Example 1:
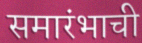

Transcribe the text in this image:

समारंभाची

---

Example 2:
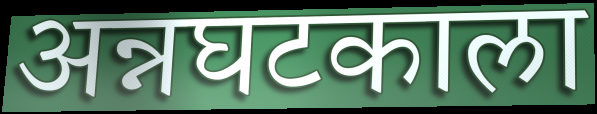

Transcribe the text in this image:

अन्नघटकाला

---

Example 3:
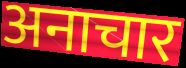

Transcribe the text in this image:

अनाचार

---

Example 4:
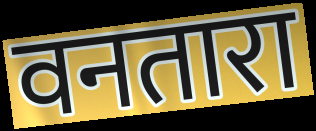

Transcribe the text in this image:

वनतारा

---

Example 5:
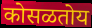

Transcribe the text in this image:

कोसळतोय